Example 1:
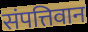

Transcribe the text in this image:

संपत्तिवान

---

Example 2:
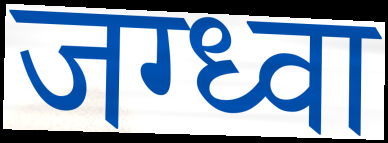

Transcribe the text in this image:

जग्ध्वा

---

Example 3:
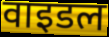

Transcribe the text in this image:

वाइडल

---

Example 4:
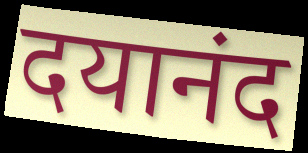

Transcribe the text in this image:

दयानंद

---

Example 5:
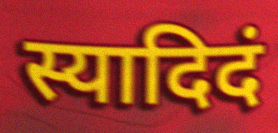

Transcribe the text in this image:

स्यादिदं